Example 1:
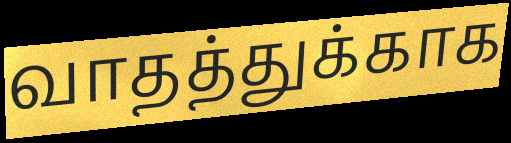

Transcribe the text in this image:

வாதத்துக்காக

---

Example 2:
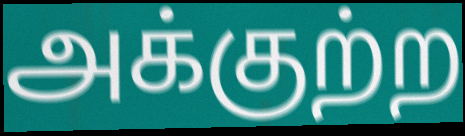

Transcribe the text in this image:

அக்குற்ற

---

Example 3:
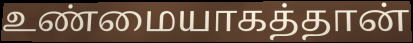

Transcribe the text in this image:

உண்மையாகத்தான்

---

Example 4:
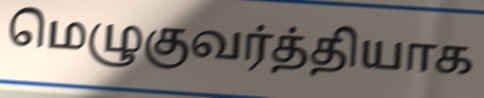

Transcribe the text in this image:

மெழுகுவர்த்தியாக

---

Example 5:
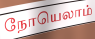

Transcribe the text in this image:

நோயெலாம்